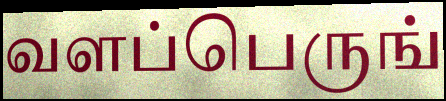
வளப்பெருங்